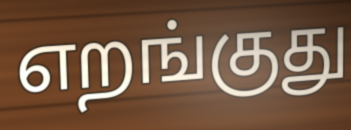
எறங்குது